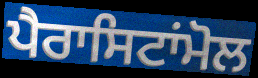
ਪੈਰਾਸਿਟਾਂਮੋਲ